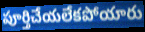
పూర్తిచేయలేకపోయారు